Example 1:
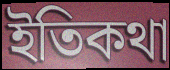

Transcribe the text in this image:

ইতিকথা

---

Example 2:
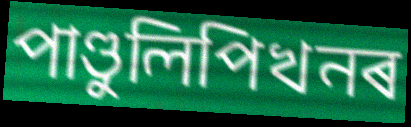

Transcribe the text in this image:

পাণ্ডুলিপিখনৰ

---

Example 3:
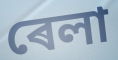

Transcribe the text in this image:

ৰেলা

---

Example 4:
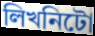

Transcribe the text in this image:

লিখনিটো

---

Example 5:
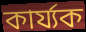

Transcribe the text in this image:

কাৰ্য্যক